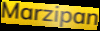
Marzipan